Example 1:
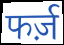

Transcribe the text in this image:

फर्ज़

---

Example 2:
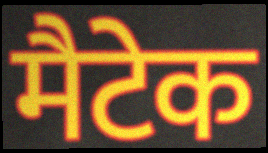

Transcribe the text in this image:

मैटेक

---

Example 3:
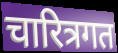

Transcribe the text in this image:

चारित्रगत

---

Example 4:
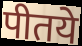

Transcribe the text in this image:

पीतये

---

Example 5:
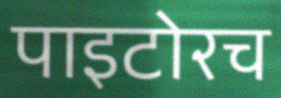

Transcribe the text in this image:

पाइटोरच